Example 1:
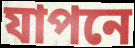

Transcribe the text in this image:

যাপনে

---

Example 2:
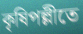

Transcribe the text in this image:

কৃষিপল্লীতে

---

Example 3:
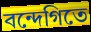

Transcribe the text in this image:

বন্দেগিতে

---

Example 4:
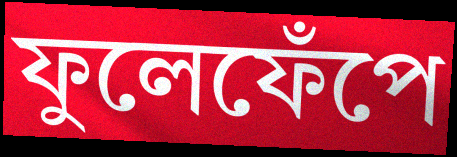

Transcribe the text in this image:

ফুলেফেঁপে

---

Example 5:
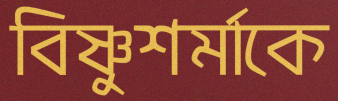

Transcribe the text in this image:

বিষ্ণুশর্মাকে